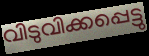
വിടുവിക്കപ്പെട്ടു